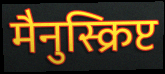
मैनुस्क्रिप्ट